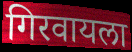
गिरवायला